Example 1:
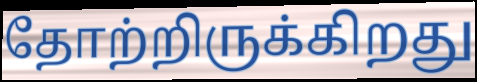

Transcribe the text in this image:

தோற்றிருக்கிறது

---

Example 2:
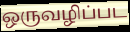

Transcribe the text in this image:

ஒருவழிப்பட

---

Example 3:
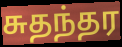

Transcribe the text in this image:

சுதந்தர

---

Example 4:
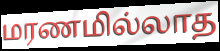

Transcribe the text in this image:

மரணமில்லாத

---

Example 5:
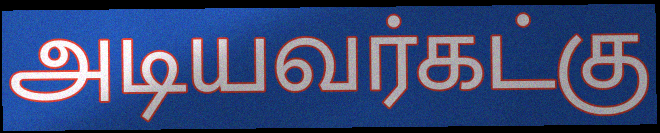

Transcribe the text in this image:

அடியவர்கட்கு